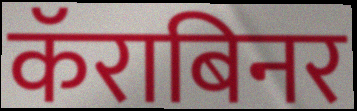
कॅराबिनर